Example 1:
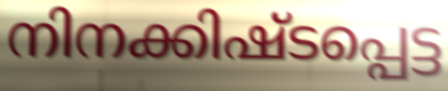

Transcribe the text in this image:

നിനക്കിഷ്ടപ്പെട്ട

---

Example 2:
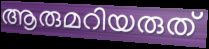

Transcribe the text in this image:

ആരുമറിയരുത്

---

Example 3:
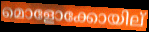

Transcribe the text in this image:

മൊളോക്കോയില്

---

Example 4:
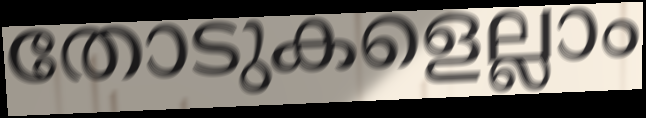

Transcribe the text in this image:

തോടുകളെല്ലാം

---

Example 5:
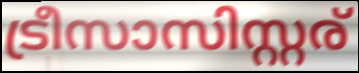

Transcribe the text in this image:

ട്രീസാസിസ്റ്റര്